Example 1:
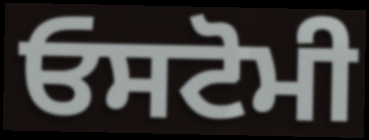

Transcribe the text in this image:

ਓਸਟੋਮੀ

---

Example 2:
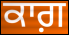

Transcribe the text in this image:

ਕਾਗ਼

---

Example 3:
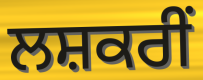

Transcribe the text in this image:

ਲਸ਼ਕਰੀਂ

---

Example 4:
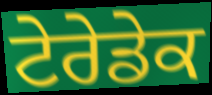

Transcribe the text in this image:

ਟੇਰੇਡੇਕ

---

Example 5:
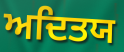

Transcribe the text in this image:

ਅਦਿਤਯ